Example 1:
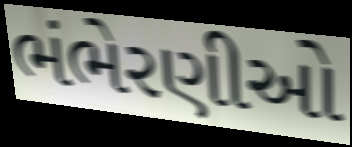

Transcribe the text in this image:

ભંભેરણીઓ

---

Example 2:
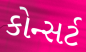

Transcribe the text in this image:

કોન્સર્ટ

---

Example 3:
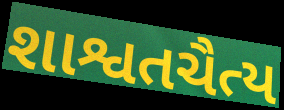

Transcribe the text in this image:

શાશ્વતચૈત્ય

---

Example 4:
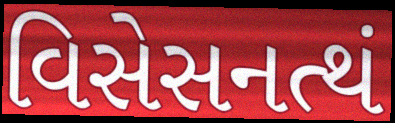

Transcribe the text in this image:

વિસેસનત્થં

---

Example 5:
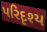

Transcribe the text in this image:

પરિદૃશ્ય